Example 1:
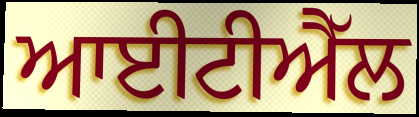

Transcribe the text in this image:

ਆਈਟੀਐੱਲ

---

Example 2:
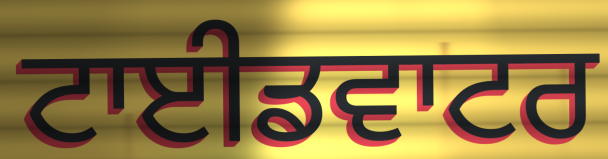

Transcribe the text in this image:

ਟਾਈਡਵਾਟਰ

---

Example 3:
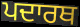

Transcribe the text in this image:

ਪਦਾਰਥ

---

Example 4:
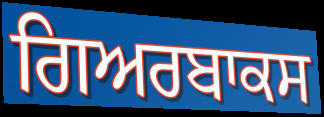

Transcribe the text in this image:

ਗਿਅਰਬਾਕਸ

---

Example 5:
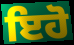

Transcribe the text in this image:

ਇਹੋ